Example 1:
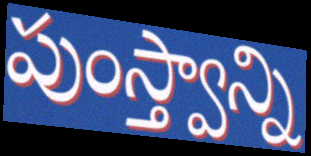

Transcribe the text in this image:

పుంస్త్వాన్ని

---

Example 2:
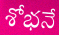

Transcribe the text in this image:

శోభనే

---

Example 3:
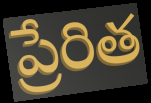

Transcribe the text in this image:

ప్రేరిత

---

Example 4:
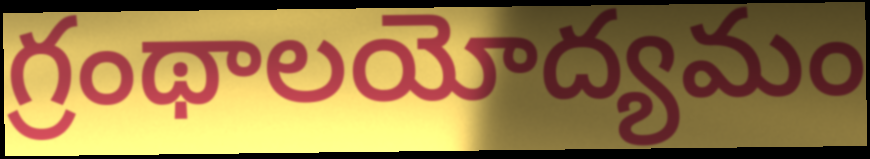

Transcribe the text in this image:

గ్రంథాలయోద్యమం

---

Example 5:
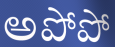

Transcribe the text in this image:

అపోపో